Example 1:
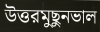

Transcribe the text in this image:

উত্তরমুছুনভাল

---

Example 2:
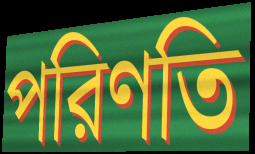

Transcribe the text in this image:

পরিণতি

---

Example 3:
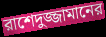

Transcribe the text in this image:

রাশেদুজ্জামানের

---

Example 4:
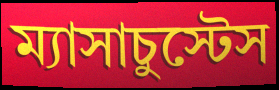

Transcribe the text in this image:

ম্যাসাচুস্টেস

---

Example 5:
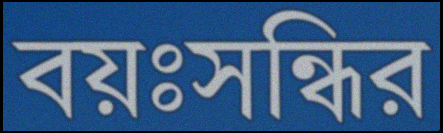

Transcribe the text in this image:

বয়ঃসন্ধির